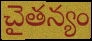
చైతన్యం